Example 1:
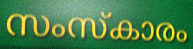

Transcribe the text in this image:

സംസ്‌കാരം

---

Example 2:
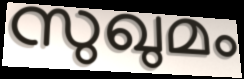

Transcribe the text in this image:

സുഖുമം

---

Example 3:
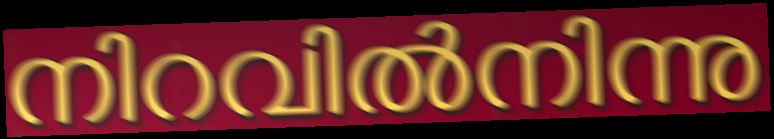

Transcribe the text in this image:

നിറവിൽനിന്നു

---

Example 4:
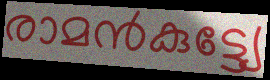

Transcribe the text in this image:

രാമൻകുട്ട്യേ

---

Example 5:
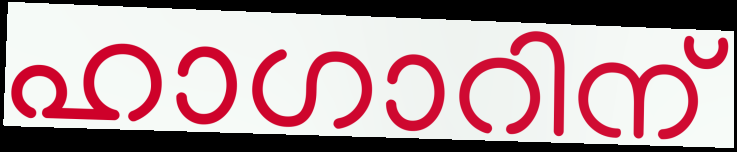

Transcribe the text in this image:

ഹാഗാറിന്